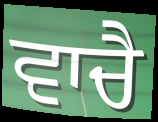
ਵਾਚੈ